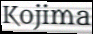
Kojima